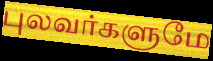
புலவர்களுமே